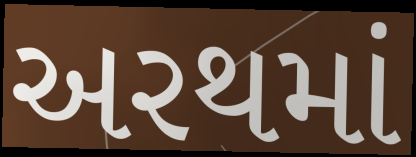
અરથમાં